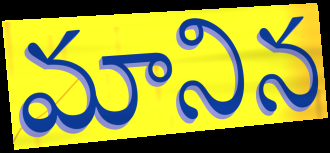
మానిన